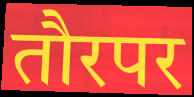
तौरपर